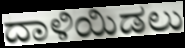
ದಾಳಿಯಿಡಲು